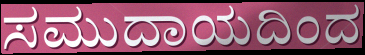
ಸಮುದಾಯದಿಂದ